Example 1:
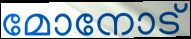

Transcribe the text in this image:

മോനോട്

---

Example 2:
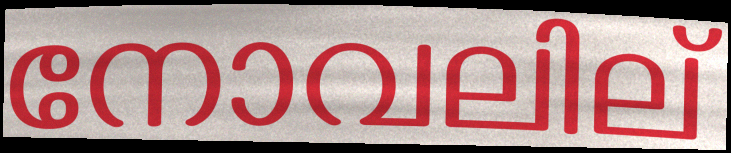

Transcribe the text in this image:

നോവലില്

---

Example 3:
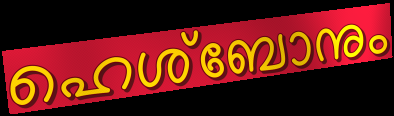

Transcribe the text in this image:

ഹെശ്ബോനും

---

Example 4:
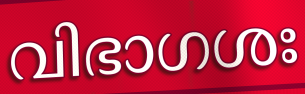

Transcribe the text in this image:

വിഭാഗശഃ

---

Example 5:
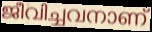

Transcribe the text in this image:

ജീവിച്ചവനാണ്